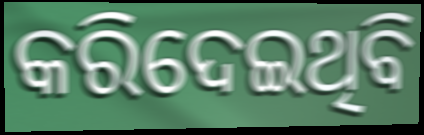
କରିଦେଇଥିବି